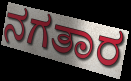
ನಗತಾರ